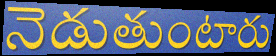
నెడుతుంటారు